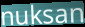
nuksan